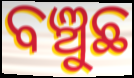
ବଞ୍ଚୁଛ